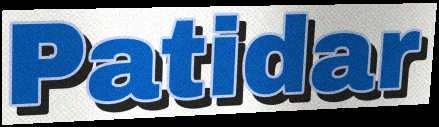
Patidar